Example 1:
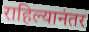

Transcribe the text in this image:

राहिल्यानंतर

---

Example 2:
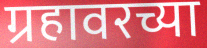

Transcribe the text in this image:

ग्रहावरच्या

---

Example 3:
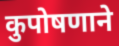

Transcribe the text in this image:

कुपोषणाने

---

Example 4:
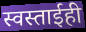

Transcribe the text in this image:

स्वस्ताईही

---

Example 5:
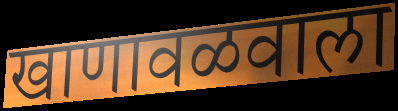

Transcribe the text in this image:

खाणावळवाला